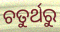
ଚତୁର୍ଥରୁ